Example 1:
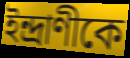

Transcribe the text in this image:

ইন্দ্রাণীকে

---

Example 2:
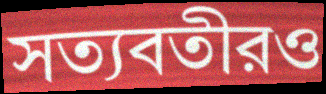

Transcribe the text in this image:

সত্যবতীরও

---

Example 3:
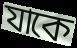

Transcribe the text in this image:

যাকে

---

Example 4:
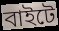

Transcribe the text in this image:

বাইটে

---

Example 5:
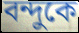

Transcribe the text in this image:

বন্দুকে